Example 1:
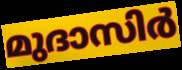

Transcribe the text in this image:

മുദാസിർ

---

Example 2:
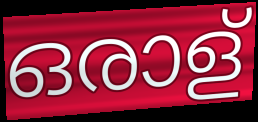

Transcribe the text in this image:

ഒരാള്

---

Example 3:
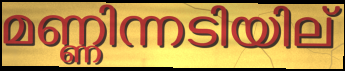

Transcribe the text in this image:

മണ്ണിന്നടിയില്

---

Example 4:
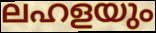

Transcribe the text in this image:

ലഹളയും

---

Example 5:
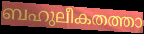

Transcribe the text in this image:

ബഹുലീകതത്താ